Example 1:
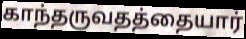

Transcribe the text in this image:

காந்தருவதத்தையார்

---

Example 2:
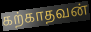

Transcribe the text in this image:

கற்காதவன்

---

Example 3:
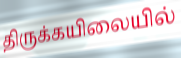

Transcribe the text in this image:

திருக்கயிலையில்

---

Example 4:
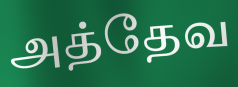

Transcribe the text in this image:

அத்தேவ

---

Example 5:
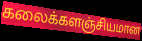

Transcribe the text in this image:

கலைக்களஞ்சியமான